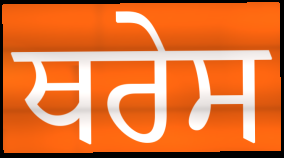
ਥਰੇਸ